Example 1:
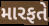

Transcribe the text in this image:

મારફતે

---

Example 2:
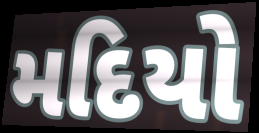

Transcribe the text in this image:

મદિયો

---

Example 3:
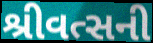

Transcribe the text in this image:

શ્રીવત્સની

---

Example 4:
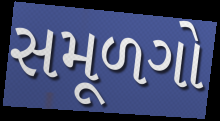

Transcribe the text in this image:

સમૂળગો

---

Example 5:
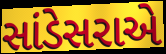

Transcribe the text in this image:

સાંડેસરાએ